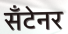
सँटेनर